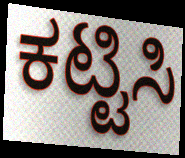
ಕಟ್ಟಿಸಿ